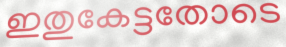
ഇതുകേട്ടതോടെ